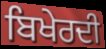
ਬਿਖੇਰਦੀ